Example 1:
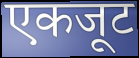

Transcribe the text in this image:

एकजूट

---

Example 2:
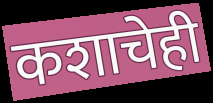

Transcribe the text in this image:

कशाचेही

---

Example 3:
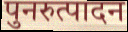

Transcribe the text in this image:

पुनरुत्पादन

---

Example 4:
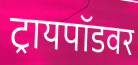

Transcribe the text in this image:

ट्रायपॉडवर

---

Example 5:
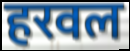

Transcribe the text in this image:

हरवल